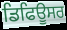
ਡਿਫਿਊਸਰ